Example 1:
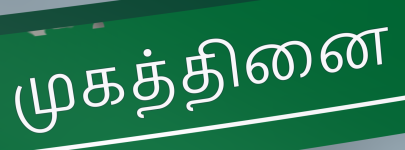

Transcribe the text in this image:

முகத்தினை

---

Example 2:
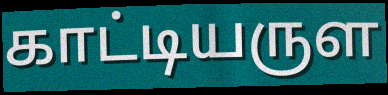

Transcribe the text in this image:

காட்டியருள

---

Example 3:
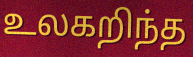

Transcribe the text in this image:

உலகறிந்த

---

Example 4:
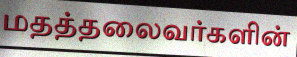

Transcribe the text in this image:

மதத்தலைவர்களின்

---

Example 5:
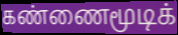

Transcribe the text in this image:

கண்ணைமூடிக்